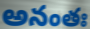
అనంతః